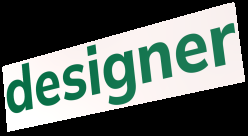
designer